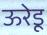
ऊरेडू